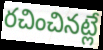
రచించినట్లే